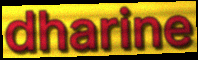
dharine